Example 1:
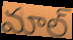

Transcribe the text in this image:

మాల్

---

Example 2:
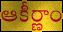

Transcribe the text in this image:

ఆకీర్ణాం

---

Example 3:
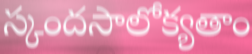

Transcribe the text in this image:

స్కందసాలోక్యతాం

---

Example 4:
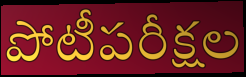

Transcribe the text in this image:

పోటీపరీక్షల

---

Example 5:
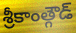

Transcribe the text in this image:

శ్రీకాంత్గౌడ్